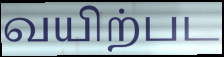
வயிற்பட